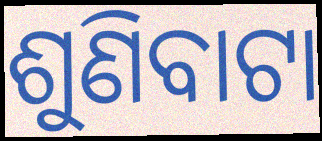
ଶୁଣିବାଟା